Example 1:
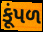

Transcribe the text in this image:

કૂંપળ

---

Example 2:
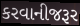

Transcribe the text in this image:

કરવાનીજરૂર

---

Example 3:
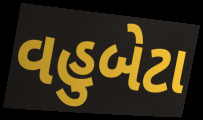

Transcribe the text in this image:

વહુબેટા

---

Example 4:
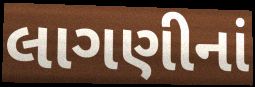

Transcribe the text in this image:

લાગણીનાં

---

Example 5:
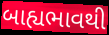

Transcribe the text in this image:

બાહ્યભાવથી